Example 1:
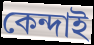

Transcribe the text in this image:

কেন্দাই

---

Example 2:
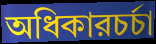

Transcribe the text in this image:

অধিকারচর্চা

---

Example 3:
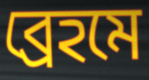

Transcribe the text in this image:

ব্রেহমে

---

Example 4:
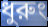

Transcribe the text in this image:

ধুরুং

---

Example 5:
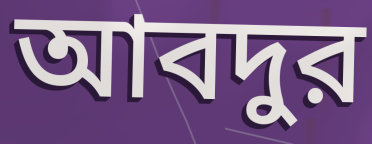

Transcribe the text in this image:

আবদুর